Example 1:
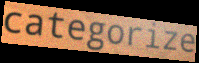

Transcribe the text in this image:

categorize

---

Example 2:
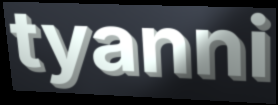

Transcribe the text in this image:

tyanni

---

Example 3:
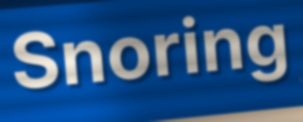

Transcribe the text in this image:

Snoring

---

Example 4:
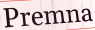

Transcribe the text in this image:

Premna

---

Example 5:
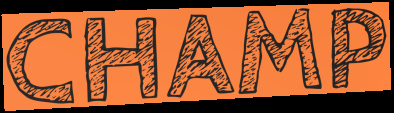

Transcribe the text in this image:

CHAMP